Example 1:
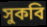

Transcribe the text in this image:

সুকবি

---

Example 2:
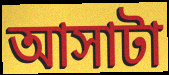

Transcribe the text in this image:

আসাটা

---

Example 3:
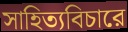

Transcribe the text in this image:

সাহিত্যবিচারে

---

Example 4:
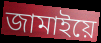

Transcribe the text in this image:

জামাইয়ে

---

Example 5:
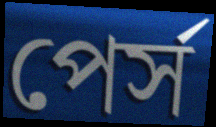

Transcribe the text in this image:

পের্স